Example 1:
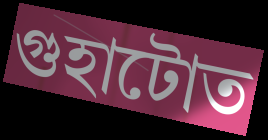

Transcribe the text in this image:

গুহাটোত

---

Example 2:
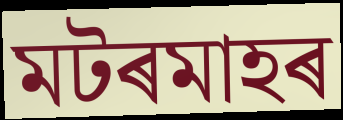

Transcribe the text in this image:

মটৰমাহৰ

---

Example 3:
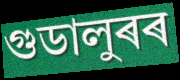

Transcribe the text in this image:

গুডালুৰৰ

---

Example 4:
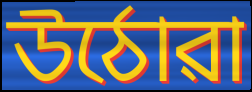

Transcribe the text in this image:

উঠোৱা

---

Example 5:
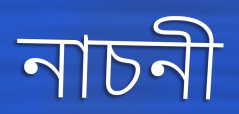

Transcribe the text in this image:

নাচনী